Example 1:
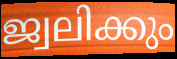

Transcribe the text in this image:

ജ്വലിക്കും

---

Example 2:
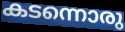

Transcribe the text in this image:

കടന്നൊരു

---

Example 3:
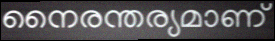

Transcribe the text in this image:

നൈരന്തര്യമാണ്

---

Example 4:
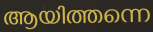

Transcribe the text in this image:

ആയിത്തന്നെ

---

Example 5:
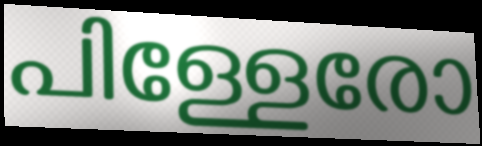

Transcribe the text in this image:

പിള്ളേരോ